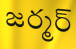
జర్మర్